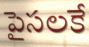
పైసలకే